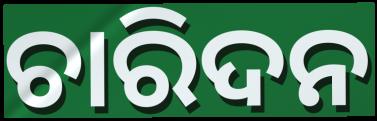
ଚାରିଦନ